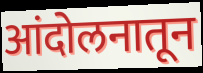
आंदोलनातून